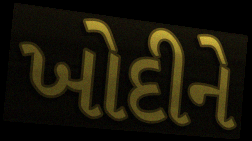
ખોદીને